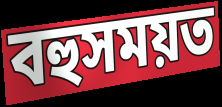
বহুসময়ত